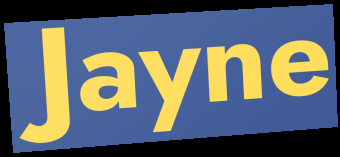
Jayne